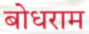
बोधराम